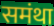
समंथा